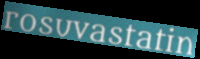
rosuvastatin